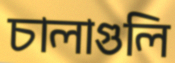
চালাগুলি